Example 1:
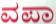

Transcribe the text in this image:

ವಪಾ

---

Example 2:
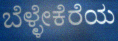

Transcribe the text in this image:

ಬೆಳ್ಳೇಕೆರೆಯ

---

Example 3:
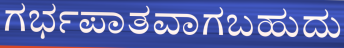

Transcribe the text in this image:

ಗರ್ಭಪಾತವಾಗಬಹುದು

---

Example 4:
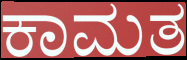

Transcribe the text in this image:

ಕಾಮತ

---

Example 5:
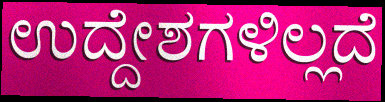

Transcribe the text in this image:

ಉದ್ದೇಶಗಳಿಲ್ಲದೆ